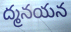
ద్మనయన